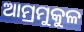
ଆମ୍ରମୁକୁଳ